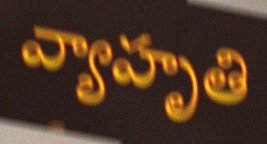
వ్యాహృతి